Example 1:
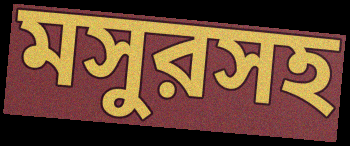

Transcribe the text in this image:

মসুরসহ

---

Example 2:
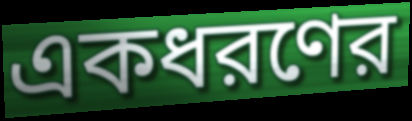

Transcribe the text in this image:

একধরণের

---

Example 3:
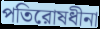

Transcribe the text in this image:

পতিরোষধীনা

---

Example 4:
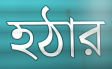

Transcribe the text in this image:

হঠার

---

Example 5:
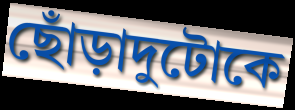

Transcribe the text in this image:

ছোঁড়াদুটোকে